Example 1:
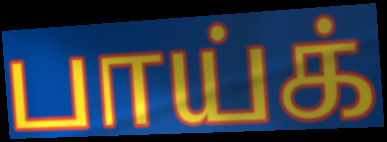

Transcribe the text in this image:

பாய்க்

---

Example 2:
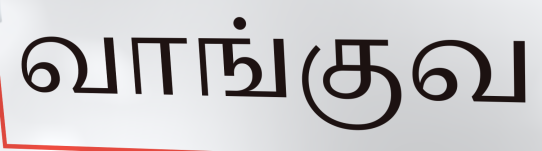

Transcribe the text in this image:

வாங்குவ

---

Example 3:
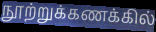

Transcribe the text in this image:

நூற்றுக்கணக்கில்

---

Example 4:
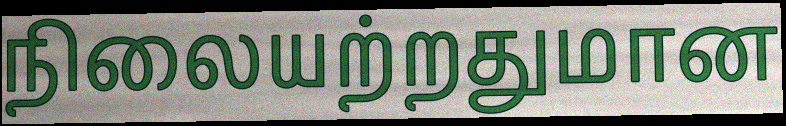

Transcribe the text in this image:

நிலையற்றதுமான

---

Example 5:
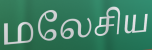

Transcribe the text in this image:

மலேசிய